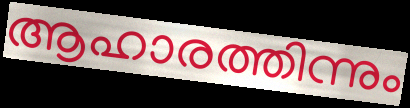
ആഹാരത്തിന്നും